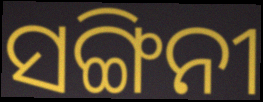
ସଙ୍ଗିନୀ